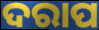
ଦରାପ